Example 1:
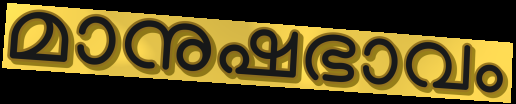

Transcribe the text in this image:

മാനുഷഭാവം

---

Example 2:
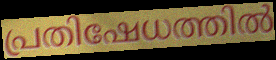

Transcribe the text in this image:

പ്രതിഷേധത്തിൽ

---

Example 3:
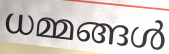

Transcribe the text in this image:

ധമ്മങ്ങൾ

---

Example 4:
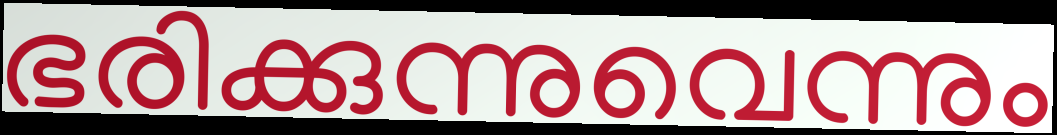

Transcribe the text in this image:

ഭരിക്കുന്നുവെന്നും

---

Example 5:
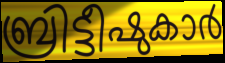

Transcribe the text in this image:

ബ്രിട്ടീഷുകാർ